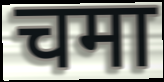
चमा